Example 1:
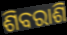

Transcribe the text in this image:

ଶିବରାଶି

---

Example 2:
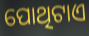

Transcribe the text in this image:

ପୋଥିଟାଏ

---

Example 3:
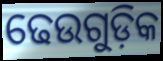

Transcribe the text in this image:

ଢେଉଗୁଡ଼ିକ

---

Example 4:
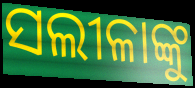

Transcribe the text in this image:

ସଲୀଳାଙ୍କୁ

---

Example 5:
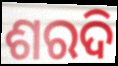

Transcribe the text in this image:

ଶରଦି